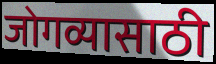
जोगव्यासाठी